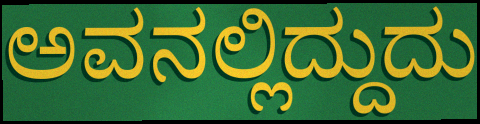
ಅವನಲ್ಲಿದ್ದುದು